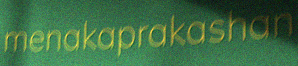
menakaprakashan